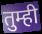
तुम्ही